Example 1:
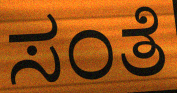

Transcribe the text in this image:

ಸಂತೆ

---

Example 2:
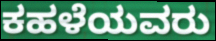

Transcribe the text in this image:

ಕಹಳೆಯವರು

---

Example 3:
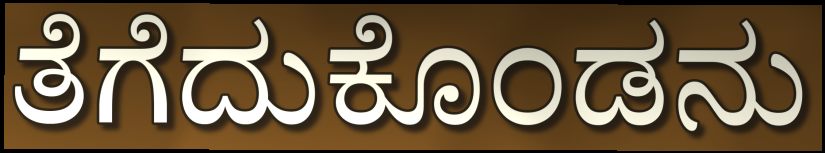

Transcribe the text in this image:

ತೆಗೆದುಕೊಂಡನು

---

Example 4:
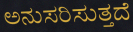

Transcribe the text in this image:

ಅನುಸರಿಸುತ್ತದೆ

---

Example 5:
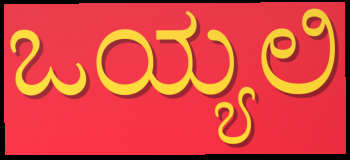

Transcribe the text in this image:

ಒಯ್ಯಲಿ